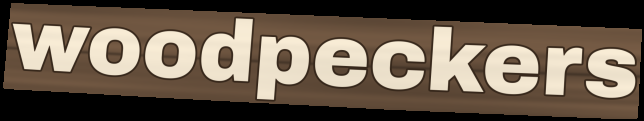
woodpeckers